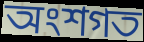
অংশগত